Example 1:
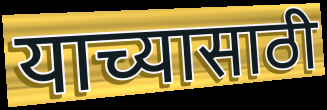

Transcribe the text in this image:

याच्यासाठी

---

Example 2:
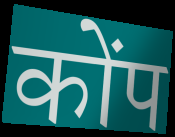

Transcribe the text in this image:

कोंप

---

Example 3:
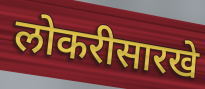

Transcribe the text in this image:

लोकरीसारखे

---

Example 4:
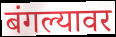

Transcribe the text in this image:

बंगल्यावर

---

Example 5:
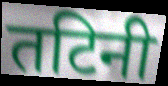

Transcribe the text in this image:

तटिनी